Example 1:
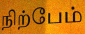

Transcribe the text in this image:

நிற்பேம்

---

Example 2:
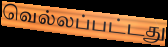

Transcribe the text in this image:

வெல்லப்பட்டது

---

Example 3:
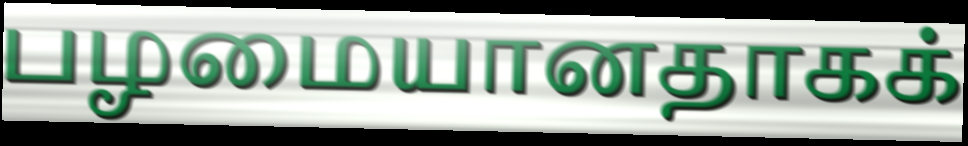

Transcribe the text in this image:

பழமையானதாகக்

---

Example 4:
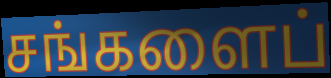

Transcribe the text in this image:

சங்களைப்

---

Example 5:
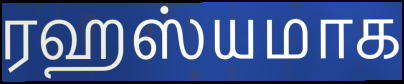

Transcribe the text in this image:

ரஹஸ்யமாக